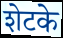
शेटके